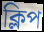
ক্লিপ